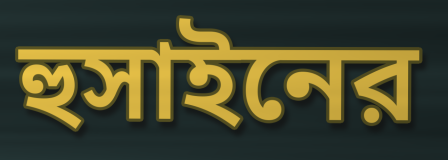
হুসাইনের